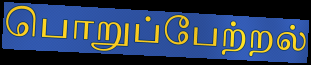
பொறுப்பேற்றல்